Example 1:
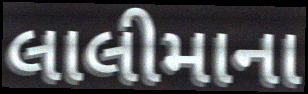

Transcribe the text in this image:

લાલીમાના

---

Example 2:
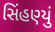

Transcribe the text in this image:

સિંહણ્યું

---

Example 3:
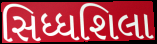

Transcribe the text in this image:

સિધ્ધશિલા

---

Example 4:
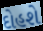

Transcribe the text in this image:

દોહશે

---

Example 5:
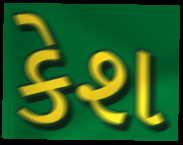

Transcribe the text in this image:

કેશ